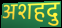
अशहदु